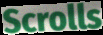
Scrolls